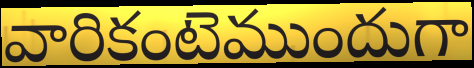
వారికంటెముందుగా